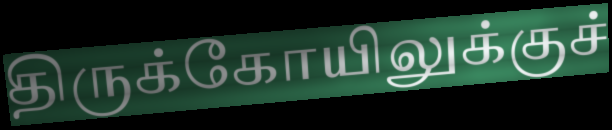
திருக்கோயிலுக்குச்